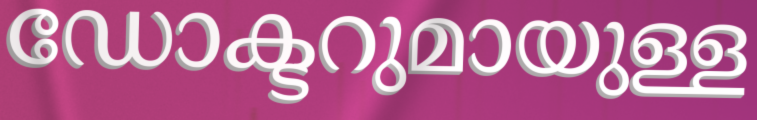
ഡോക്ടറുമായുള്ള